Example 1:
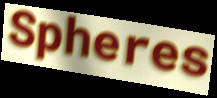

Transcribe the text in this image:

Spheres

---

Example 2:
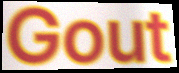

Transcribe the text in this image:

Gout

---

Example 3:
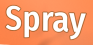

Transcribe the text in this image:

Spray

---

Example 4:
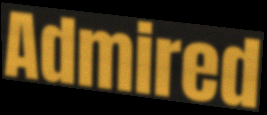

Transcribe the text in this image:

Admired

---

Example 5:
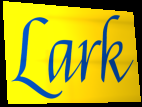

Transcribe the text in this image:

Lark